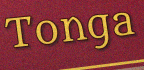
Tonga